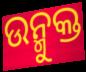
ଉନ୍ମୁକ୍ତ